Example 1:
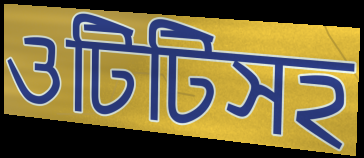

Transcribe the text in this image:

ওটিটিসহ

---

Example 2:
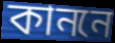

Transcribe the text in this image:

কাননে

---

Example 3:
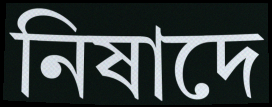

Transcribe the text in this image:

নিষাদে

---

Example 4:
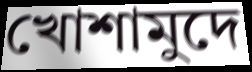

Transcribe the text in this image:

খোশামুদে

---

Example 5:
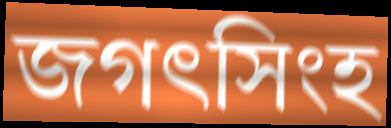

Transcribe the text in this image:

জগৎসিংহ